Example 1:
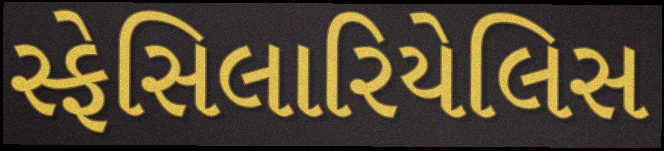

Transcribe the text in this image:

સ્ફેસિલારિયેલિસ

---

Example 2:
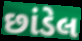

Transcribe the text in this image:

છાંડેલ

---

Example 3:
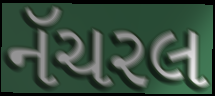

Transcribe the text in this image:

નૅચરલ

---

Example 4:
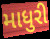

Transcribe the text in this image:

માધુરી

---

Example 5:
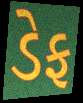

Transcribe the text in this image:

ડેફ